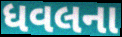
ધવલના